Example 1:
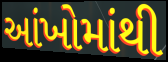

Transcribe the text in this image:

આંખોમાંથી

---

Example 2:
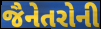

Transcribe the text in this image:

જૈનેતરોની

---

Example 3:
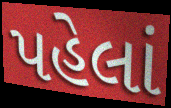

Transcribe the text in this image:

પહેલાં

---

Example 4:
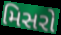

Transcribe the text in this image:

મિસરો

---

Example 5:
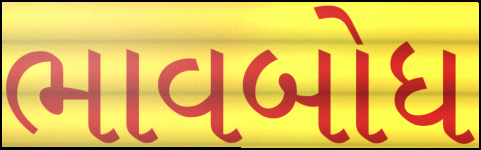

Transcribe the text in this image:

ભાવબોધ